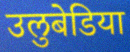
उलुबेडिया